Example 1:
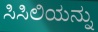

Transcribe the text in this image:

ಸಿಸಿಲಿಯನ್ನು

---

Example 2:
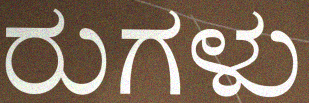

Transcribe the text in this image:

ರುಗಳು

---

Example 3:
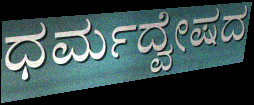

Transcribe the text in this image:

ಧರ್ಮದ್ವೇಷದ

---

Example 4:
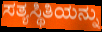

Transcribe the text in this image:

ಸತ್ಯಸ್ಥಿತಿಯನ್ನು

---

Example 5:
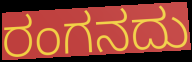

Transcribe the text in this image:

ರಂಗನದು